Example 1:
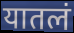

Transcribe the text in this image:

यातलं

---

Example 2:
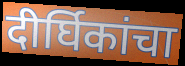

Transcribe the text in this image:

दीर्घिकांचा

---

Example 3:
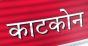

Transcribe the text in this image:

काटकोन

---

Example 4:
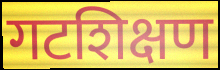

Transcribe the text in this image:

गटशिक्षण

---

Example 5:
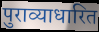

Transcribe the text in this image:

पुराव्याधारित